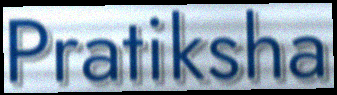
Pratiksha